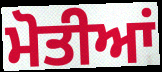
ਮੋਤੀਆਂ